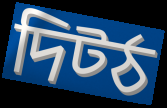
দিট্ঠ